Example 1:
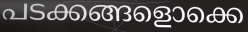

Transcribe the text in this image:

പടക്കങ്ങളൊക്കെ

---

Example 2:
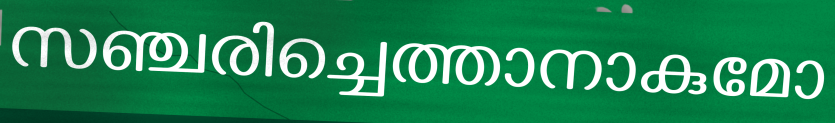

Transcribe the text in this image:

സഞ്ചരിച്ചെത്താനാകുമോ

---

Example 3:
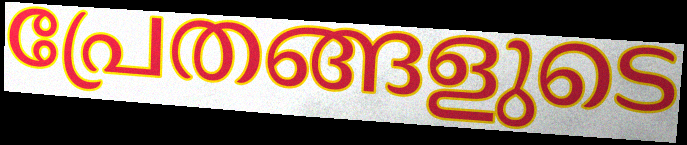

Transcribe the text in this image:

പ്രേതങ്ങളുടെ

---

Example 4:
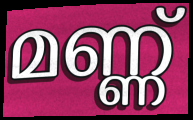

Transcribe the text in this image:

മണ്ണ്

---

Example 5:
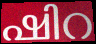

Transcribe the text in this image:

ഷിറ